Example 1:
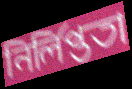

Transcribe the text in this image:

নির্লিপ্ততা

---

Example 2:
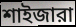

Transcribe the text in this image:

শাইজারা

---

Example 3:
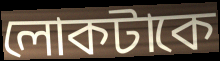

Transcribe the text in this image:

লোকটাকে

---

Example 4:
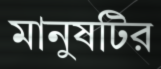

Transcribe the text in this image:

মানুষটির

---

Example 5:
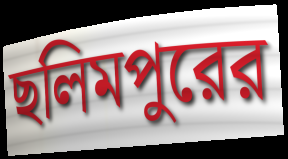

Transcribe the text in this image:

ছলিমপুরের